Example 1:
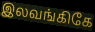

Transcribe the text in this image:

இலவங்கிகே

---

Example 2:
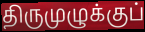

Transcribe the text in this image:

திருமுழுக்குப்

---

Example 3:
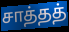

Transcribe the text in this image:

சாத்தத்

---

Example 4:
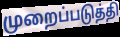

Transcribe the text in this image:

முறைப்படுத்தி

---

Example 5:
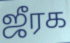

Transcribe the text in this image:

ஜீரக